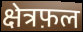
क्षेत्रफ़ल